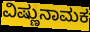
ವಿಷ್ಣುನಾಮಕ